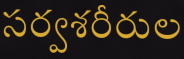
సర్వశరీరుల